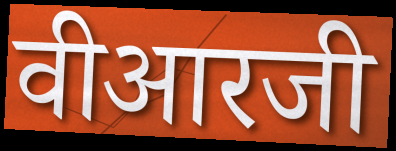
वीआरजी